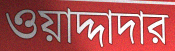
ওয়াদ্দাদার